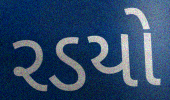
રડયો